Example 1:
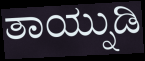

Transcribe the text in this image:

ತಾಯ್ನುಡಿ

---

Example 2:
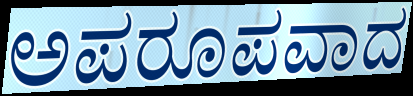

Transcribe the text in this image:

ಅಪರೂಪವಾದ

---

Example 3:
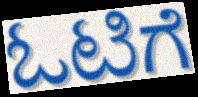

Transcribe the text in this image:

ಓಟಿಗೆ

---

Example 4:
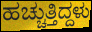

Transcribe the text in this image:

ಹಚ್ಚುತ್ತಿದ್ದಳು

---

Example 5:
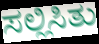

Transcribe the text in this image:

ಸಲ್ಲಿಸಿತು